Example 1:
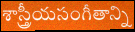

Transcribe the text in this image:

శాస్త్రీయసంగీతాన్ని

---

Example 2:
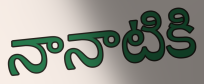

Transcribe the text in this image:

నానాటికి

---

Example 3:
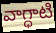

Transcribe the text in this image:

వాగ్ధాటి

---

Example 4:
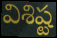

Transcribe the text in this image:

విశిష్ట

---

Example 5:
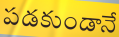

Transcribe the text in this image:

పడకుండానే